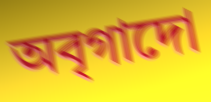
অবৃগাদো